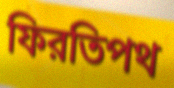
ফিরতিপথ